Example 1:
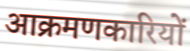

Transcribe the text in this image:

आक्रमणकारियों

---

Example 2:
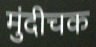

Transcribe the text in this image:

मुंदीचक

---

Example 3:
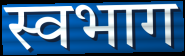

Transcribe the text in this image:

स्वभाग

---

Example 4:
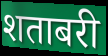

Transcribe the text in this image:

शताबरी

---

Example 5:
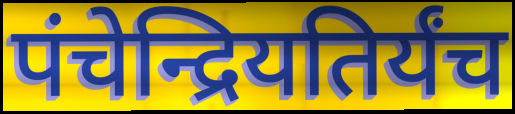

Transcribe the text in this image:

पंचेन्द्रियतिर्यंच